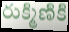
రుక్మిణికి